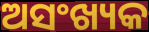
ଅସଂଖ୍ୟକ